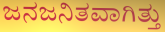
ಜನಜನಿತವಾಗಿತ್ತು